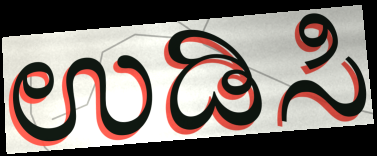
ಉಡಿಸಿ